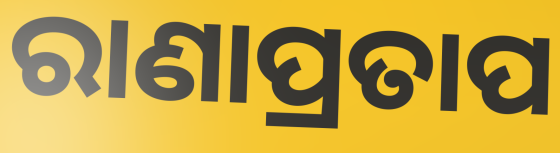
ରାଣାପ୍ରତାପ